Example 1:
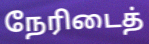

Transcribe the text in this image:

நேரிடைத்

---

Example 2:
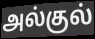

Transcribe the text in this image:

அல்குல்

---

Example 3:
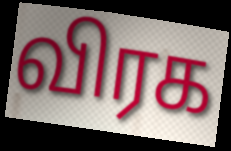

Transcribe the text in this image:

விரக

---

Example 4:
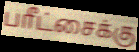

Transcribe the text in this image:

பரீட்சைக்கு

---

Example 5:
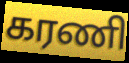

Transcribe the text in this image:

கரணி